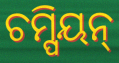
ଚମ୍ପିୟନ୍